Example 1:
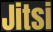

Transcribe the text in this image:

Jitsi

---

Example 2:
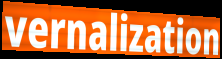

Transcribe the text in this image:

vernalization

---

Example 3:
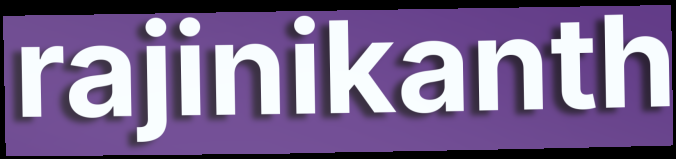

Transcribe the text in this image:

rajinikanth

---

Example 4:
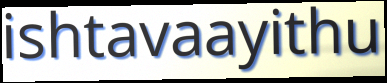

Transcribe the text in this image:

ishtavaayithu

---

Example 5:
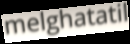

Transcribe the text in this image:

melghatatil